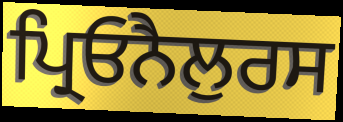
ਪ੍ਰਿਓਨੈਲੁਰਸ